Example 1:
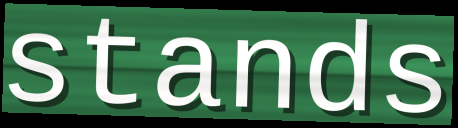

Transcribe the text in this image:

stands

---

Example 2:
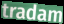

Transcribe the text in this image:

tradam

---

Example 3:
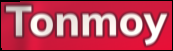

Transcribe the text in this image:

Tonmoy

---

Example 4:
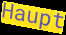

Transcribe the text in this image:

Haupt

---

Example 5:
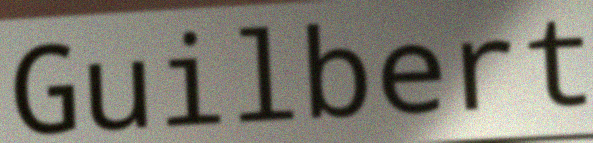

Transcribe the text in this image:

Guilbert